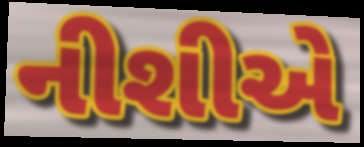
નીશીએ